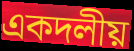
একদলীয়